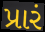
પ્રારં